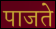
पाजते